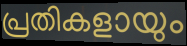
പ്രതികളായും